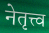
नेतृत्त्व